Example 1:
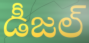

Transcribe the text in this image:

డీజల్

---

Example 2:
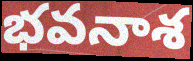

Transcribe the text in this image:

భవనాశ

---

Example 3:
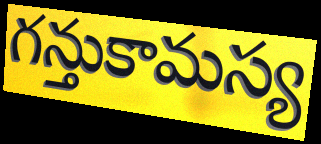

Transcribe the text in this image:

గన్తుకామస్య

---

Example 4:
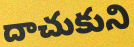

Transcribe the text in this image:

దాచుకుని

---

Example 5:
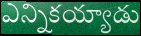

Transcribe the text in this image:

ఎన్నికయ్యాడు